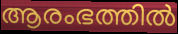
ആരംഭത്തിൽ